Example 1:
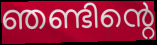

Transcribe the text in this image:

ഞണ്ടിന്റെ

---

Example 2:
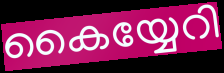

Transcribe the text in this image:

കൈയ്യേറി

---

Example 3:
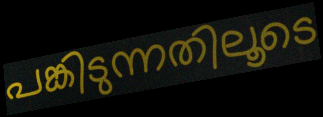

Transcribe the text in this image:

പങ്കിടുന്നതിലൂടെ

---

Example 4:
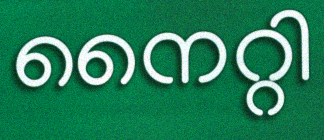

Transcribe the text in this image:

നൈറ്റി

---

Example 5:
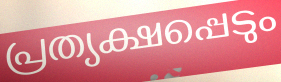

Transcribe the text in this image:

പ്രത്യക്ഷപ്പെടും